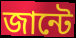
জান্টে